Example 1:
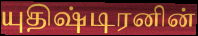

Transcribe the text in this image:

யுதிஷ்டிரனின்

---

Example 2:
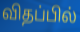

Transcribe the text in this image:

விதப்பில்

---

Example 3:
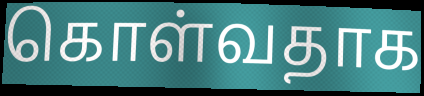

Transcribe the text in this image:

கொள்வதாக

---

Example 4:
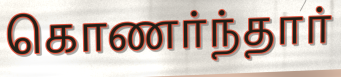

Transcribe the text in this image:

கொணர்ந்தார்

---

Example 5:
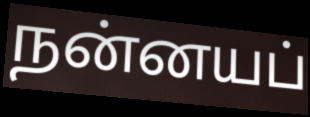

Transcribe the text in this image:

நன்னயப்